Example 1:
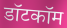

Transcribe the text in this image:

डॉटकॉम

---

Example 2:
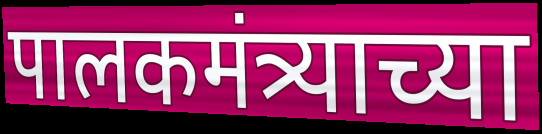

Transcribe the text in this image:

पालकमंत्र्याच्या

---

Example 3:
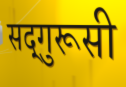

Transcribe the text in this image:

सद्‍गुरूसी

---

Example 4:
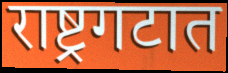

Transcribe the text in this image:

राष्ट्रगटात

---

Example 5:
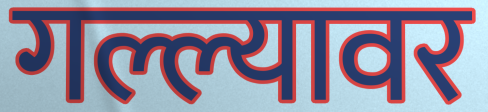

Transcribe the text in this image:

गल्ल्यावर